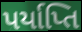
પર્યાપ્તિ